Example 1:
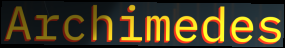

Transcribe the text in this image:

Archimedes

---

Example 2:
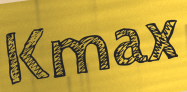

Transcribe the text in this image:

Kmax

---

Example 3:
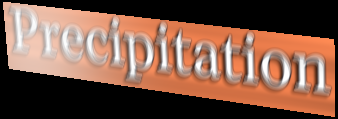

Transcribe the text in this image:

Precipitation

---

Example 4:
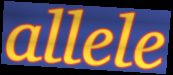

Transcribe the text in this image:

allele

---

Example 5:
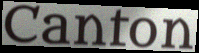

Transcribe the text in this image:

Canton